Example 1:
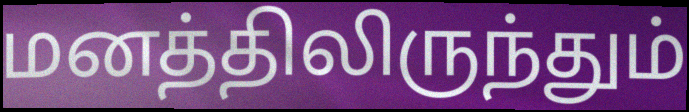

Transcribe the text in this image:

மனத்திலிருந்தும்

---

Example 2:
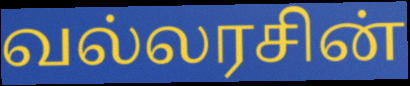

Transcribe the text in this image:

வல்லரசின்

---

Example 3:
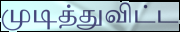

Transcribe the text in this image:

முடித்துவிட்ட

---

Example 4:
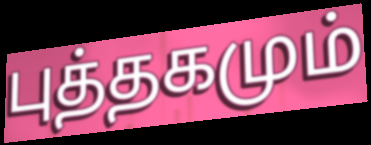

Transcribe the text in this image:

புத்தகமும்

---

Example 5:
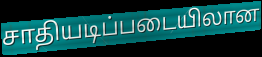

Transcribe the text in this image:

சாதியடிப்படையிலான